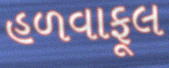
હળવાફૂલ